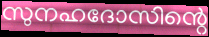
സുനഹദോസിന്റെ